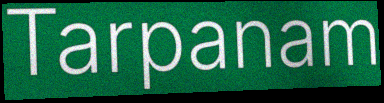
Tarpanam